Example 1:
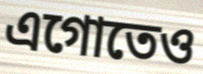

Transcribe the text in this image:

এগোতেও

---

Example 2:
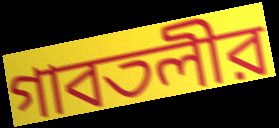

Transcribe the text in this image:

গাবতলীর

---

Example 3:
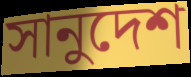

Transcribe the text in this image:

সানুদেশ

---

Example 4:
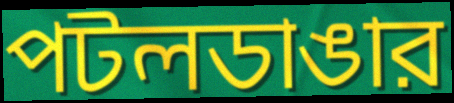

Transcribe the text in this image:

পটলডাঙার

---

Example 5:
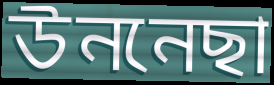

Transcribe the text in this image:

উননেছা